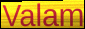
Valam